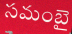
సమంబై